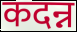
कदन्न